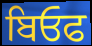
ਬਿਓਫ